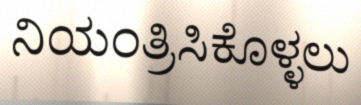
ನಿಯಂತ್ರಿಸಿಕೊಳ್ಳಲು